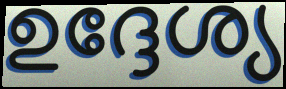
ഉദ്ദേശ്യ